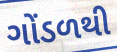
ગોંડળથી